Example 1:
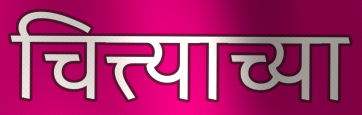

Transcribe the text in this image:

चित्त्याच्या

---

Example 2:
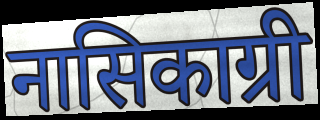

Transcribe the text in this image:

नासिकाग्री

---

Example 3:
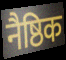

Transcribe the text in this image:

नैष्ठिक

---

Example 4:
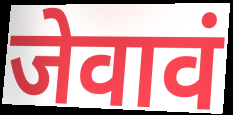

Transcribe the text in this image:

जेवावं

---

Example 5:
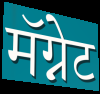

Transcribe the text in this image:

मॅग्नेट